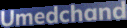
Umedchand